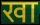
खा